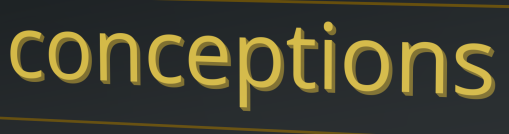
conceptions